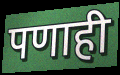
पणाही